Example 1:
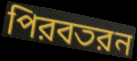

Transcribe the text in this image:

পিরবতরন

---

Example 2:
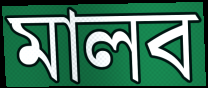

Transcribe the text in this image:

মালব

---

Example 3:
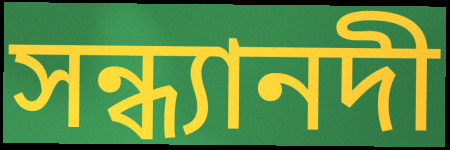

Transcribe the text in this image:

সন্ধ্যানদী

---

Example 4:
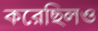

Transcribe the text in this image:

করেছিলও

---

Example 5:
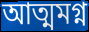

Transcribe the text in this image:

আত্মমগ্ন